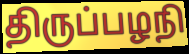
திருப்பழநி